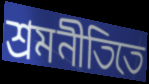
শ্রমনীতিতে